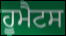
ਹੂਮੈਟਸ